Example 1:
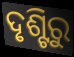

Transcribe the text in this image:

ଦୃଶ୍ଟିରୁ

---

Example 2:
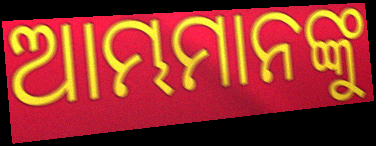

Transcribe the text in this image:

ଆମ୍ଭମାନଙ୍କୁ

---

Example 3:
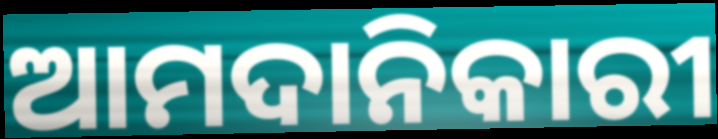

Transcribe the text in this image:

ଆମଦାନିକାରୀ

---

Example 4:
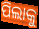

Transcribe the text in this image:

ପିଲାକୁ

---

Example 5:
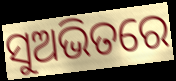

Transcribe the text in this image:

ସୁଅଭିତରେ